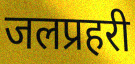
जलप्रहरी